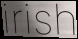
irish